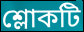
শ্লোকটি